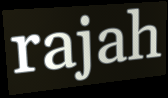
rajah